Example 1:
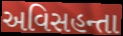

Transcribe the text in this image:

અવિસહન્તા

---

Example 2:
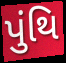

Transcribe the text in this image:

પુંથિ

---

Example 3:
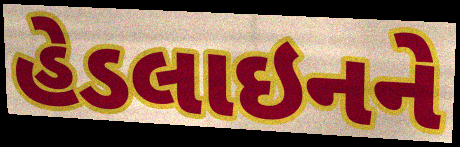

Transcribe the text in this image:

હેડલાઇનને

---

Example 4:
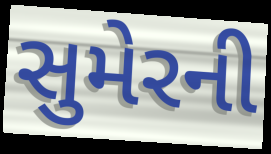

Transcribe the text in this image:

સુમેરની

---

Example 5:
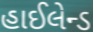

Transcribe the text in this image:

હાઈલેન્ડ